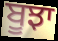
ਬੂਝਾ